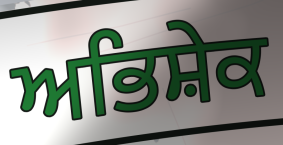
ਅਭਿਸ਼ੇਕ